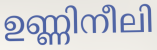
ഉണ്ണിനീലി